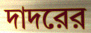
দাদরের